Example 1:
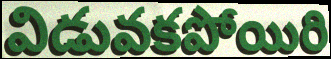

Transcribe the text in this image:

విడువకపోయిరి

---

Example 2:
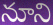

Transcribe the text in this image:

నూని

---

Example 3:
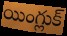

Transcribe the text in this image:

యింగ్లుక్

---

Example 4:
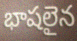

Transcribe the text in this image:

భాషలైన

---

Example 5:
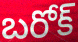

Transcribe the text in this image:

బరోక్